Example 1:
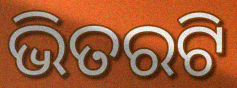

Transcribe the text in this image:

ଭିତରଟି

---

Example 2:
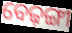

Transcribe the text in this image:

ବେଢ଼ଙ୍ଗୀ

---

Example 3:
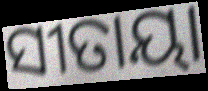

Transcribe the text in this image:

ସୀତାୟା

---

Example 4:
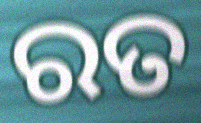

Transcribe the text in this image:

ରତ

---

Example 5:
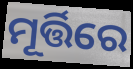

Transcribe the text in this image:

ମୂର୍ତ୍ତିରେ